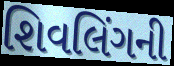
શિવલિંગની